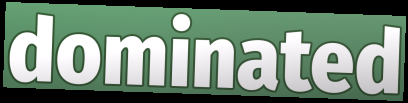
dominated